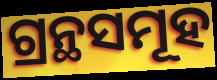
ଗ୍ରନ୍ଥସମୂହ